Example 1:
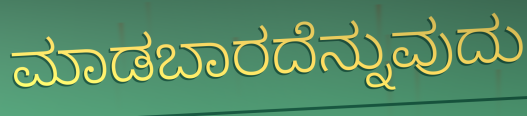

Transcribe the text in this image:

ಮಾಡಬಾರದೆನ್ನುವುದು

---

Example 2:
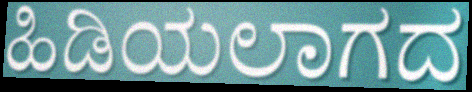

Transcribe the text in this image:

ಹಿಡಿಯಲಾಗದ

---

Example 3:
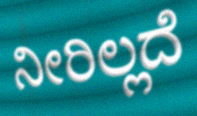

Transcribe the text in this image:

ನೀರಿಲ್ಲದೆ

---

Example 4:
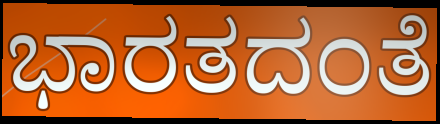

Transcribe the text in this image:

ಭಾರತದಂತೆ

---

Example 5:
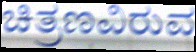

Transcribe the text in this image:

ಚಿತ್ರಣವಿರುವ